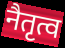
नैतृत्व